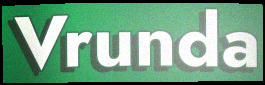
Vrunda